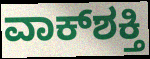
ವಾಕ್‌ಶಕ್ತಿ